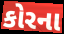
કોરના